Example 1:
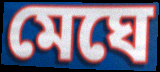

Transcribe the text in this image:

মেঘে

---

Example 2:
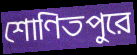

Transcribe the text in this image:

শোণিতপুরে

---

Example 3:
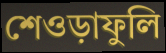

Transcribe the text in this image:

শেওড়াফুলি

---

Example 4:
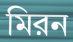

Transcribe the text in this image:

মিরন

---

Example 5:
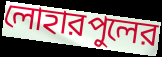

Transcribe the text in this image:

লোহারপুলের